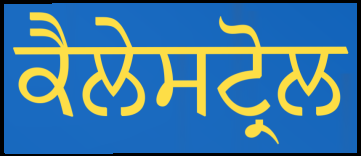
ਕੈਲੇਸਟ੍ਰੋਲ